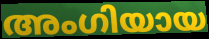
അംഗിയായ